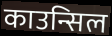
काउन्सिल